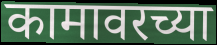
कामावरच्या